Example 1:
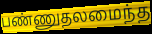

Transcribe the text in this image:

பண்ணுதலமைந்த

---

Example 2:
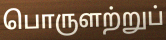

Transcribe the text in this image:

பொருளற்றுப்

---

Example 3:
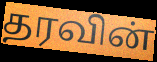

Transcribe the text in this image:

தரவின்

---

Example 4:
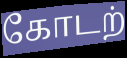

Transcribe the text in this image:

கோடற்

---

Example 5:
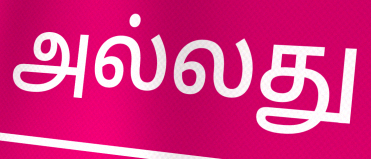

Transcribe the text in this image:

அல்லது